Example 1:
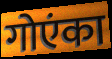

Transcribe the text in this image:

गोएंका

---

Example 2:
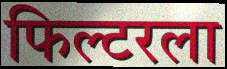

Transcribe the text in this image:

फिल्टरला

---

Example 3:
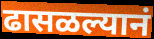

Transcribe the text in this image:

ढासळल्यानं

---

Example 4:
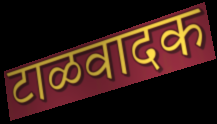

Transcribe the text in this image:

टाळवादक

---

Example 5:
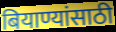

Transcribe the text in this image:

बियाण्यांसाठी